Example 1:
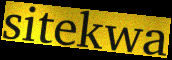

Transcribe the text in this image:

sitekwa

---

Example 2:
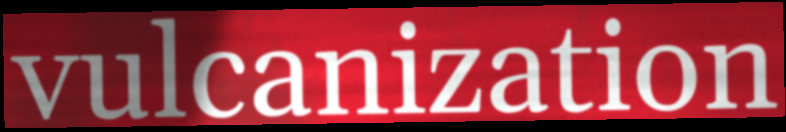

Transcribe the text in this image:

vulcanization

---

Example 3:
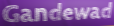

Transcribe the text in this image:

Gandewad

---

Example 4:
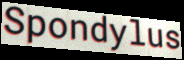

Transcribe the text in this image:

Spondylus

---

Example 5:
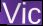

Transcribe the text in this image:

Vic